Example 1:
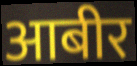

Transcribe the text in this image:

आबीर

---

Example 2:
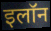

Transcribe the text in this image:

इलॉन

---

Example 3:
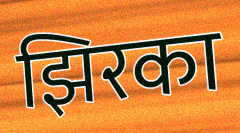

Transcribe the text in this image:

झिरका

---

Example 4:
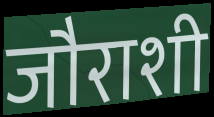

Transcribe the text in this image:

जौराशी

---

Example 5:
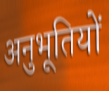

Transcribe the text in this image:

अनुभूतियों